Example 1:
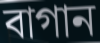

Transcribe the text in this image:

বাগান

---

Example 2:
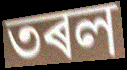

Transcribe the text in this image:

তৰল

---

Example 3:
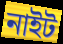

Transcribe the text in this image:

নাইট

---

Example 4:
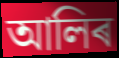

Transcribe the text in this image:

আলিৰ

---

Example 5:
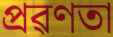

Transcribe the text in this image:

প্ৰৱণতা